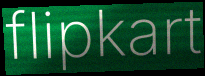
flipkart